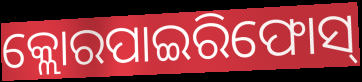
କ୍ଲୋରପାଇରିଫୋସ୍